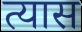
त्यास